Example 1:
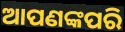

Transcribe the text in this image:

ଆପଣଙ୍କପରି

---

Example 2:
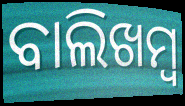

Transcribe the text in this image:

ବାଲିଖମ୍ବ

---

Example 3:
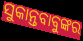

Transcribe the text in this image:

ସୁକାନ୍ତବାବୁଙ୍କର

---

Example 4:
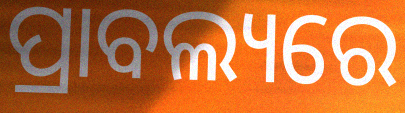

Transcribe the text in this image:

ପ୍ରାବଲ୍ୟରେ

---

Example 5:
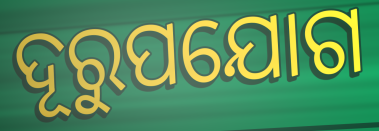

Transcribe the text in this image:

ଦୂରୁପଯୋଗ